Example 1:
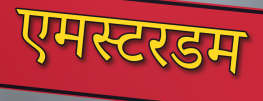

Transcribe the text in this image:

एमस्टरडम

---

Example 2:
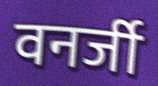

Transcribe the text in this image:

वनर्जी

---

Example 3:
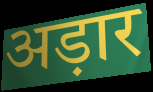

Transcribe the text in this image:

अड़ार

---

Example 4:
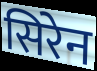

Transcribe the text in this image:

सिरेन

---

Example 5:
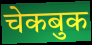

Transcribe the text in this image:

चेकबुक